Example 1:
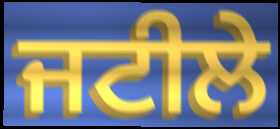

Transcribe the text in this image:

ਜਟੀਲੇ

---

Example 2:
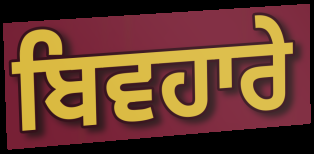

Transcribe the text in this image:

ਬਿਵਹਾਰੇ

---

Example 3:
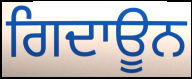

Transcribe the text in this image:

ਗਿਦਾਊਨ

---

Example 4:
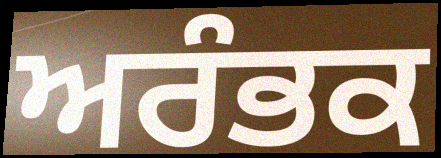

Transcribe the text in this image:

ਅਰੰਭਕ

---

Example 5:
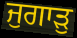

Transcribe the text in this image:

ਜੁਗਾੜੁ